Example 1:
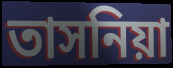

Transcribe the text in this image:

তাসনিয়া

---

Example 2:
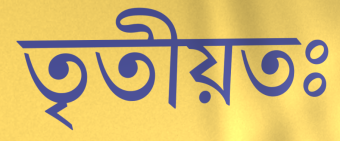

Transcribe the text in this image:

তৃতীয়তঃ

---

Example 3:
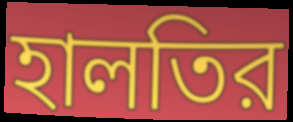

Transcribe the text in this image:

হালতির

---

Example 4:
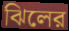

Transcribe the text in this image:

ঝিলের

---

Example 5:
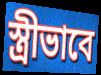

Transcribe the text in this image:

স্ত্রীভাবে